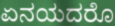
ಏನಯದರೊ